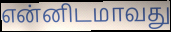
என்னிடமாவது